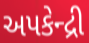
અપકેન્દ્રી